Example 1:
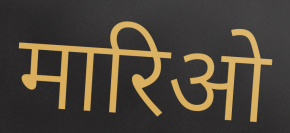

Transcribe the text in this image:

मारिओ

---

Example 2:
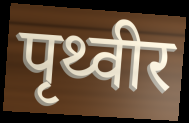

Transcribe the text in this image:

पृथ्वीर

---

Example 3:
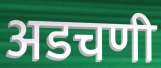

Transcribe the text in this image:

अडचणी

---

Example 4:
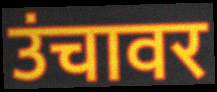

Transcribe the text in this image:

उंचावर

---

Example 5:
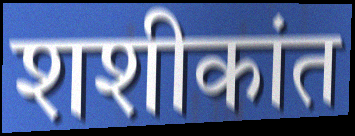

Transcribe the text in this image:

शशीकांत